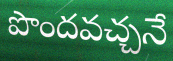
పొందవచ్చనే